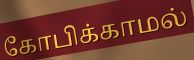
கோபிக்காமல்